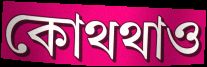
কোথথাও